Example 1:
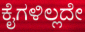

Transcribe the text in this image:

ಕೈಗಳಿಲ್ಲದೇ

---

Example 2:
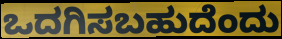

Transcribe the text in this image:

ಒದಗಿಸಬಹುದೆಂದು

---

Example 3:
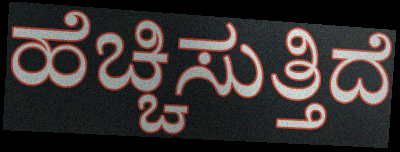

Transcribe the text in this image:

ಹೆಚ್ಚಿಸುತ್ತಿದೆ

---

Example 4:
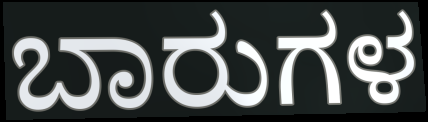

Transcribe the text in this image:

ಬಾರುಗಳ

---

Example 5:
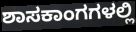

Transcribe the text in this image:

ಶಾಸಕಾಂಗಗಳಲ್ಲಿ